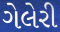
ગેલેરી